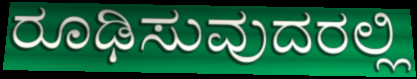
ರೂಢಿಸುವುದರಲ್ಲಿ